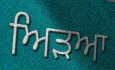
ਅਿੜਆ